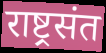
राष्ट्रसंत